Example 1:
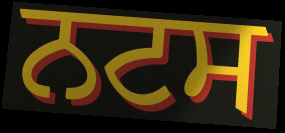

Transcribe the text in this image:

ਨਟਸ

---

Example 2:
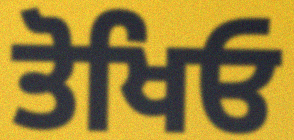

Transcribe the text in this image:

ਤੋਖਿਓ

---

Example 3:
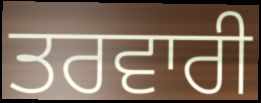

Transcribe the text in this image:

ਤਰਵਾਰੀ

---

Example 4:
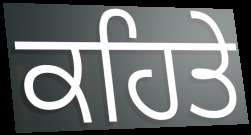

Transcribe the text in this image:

ਕਹਿਤੇ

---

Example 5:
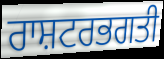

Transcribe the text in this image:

ਰਾਸ਼ਟਰਭਗਤੀ